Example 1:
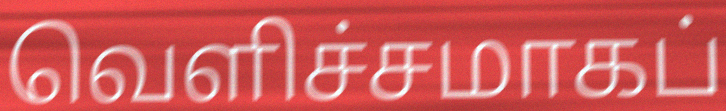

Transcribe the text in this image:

வெளிச்சமாகப்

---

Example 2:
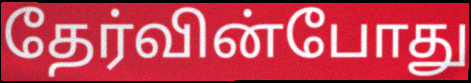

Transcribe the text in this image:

தேர்வின்போது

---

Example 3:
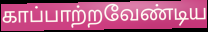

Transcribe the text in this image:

காப்பாற்றவேண்டிய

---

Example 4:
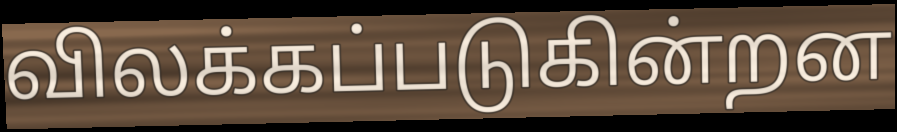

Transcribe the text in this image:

விலக்கப்படுகின்றன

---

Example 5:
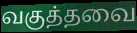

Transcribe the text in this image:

வகுத்தவை